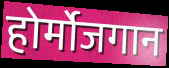
होर्मोजगान